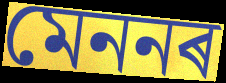
মেননৰ